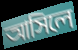
আসিলে